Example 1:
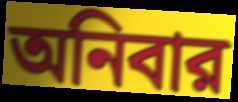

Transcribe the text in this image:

অনিবার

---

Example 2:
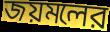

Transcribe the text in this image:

জয়মলের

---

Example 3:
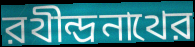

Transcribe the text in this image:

রথীন্দ্রনাথের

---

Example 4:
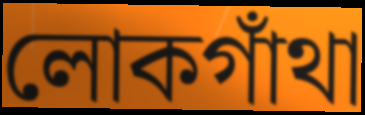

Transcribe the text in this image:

লোকগাঁথা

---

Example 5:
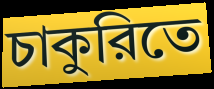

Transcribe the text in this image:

চাকুরিতে